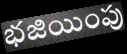
భజియింపు